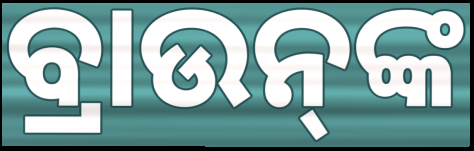
ବ୍ରାଉନ୍‌ଙ୍କ